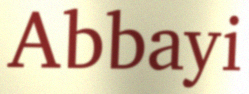
Abbayi